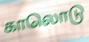
காலொடு